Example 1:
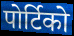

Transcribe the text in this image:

पोर्टिको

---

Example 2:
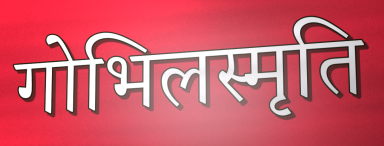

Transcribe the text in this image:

गोभिलस्मृति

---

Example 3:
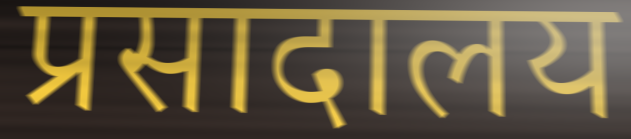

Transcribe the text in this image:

प्रसादालय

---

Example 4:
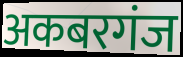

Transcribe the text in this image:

अकबरगंज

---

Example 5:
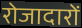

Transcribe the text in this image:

रोजादारों